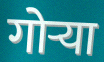
गोऱ्या